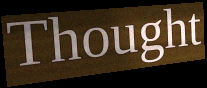
Thought